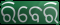
ରିବେରି